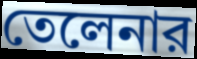
তেলেনার